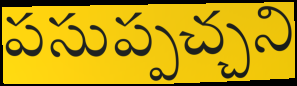
పసుప్పచ్చని